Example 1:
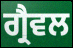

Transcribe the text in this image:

ਗ੍ਰੈਵਲ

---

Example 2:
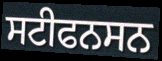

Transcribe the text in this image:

ਸਟੀਫਨਸਨ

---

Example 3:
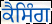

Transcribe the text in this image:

ਕੈਸਿੰਗ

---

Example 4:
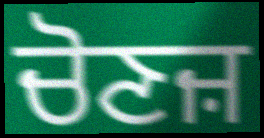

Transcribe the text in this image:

ਚੋਣਜ਼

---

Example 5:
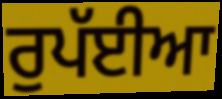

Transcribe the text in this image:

ਰੁਪੱਈਆ